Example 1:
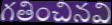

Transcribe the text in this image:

గతించినవి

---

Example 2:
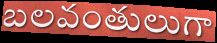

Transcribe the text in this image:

బలవంతులుగా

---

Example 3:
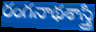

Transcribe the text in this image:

రంగనాథశాస్త్రి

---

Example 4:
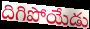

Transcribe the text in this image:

దిగిపోయేడు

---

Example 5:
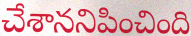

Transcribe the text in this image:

చేశాననిపించింది